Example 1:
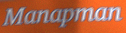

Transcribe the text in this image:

Manapman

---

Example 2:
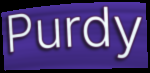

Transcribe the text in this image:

Purdy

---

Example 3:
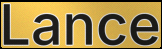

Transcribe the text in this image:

Lance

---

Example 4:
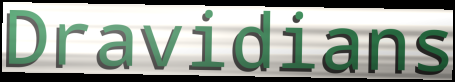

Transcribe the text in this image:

Dravidians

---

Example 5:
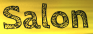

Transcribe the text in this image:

Salon